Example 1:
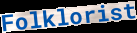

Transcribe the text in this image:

Folklorist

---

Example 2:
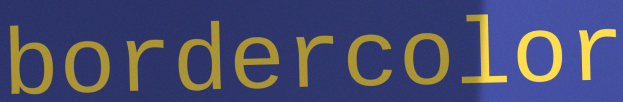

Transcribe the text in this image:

bordercolor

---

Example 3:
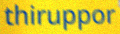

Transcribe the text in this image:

thiruppor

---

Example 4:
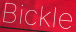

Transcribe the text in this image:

Bickle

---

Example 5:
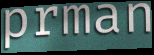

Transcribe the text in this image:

prman